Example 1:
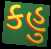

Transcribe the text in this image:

કહુ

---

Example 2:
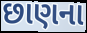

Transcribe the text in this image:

છાણના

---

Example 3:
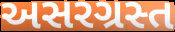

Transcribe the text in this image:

અસરગ્રસ્ત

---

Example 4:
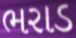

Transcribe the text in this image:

ભરાડ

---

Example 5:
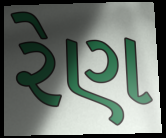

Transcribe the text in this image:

રેણ